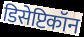
डिसेप्टिकॉन